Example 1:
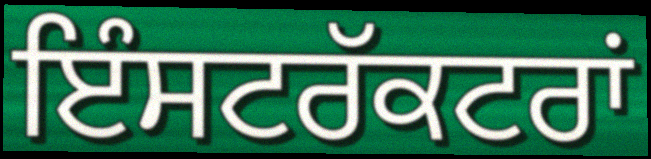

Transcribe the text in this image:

ਇੰਸਟਰੱਕਟਰਾਂ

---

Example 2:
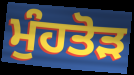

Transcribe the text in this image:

ਮੁੰਹਤੋੜ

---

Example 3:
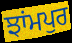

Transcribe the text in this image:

ਝਾਂਮਪੁਰ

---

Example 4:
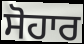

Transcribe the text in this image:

ਸੋਹਾਰ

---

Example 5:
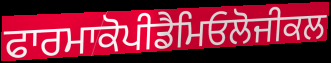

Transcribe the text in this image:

ਫਾਰਮਾਕੋਪੀਡੈਮਿਓਲੋਜੀਕਲ